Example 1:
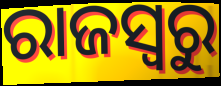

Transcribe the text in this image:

ରାଜସ୍ବରୁ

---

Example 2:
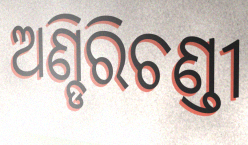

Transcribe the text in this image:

ଅଣ୍ଡିରିଚଣ୍ଡୀ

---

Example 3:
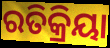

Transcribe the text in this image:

ରତିକ୍ରିୟା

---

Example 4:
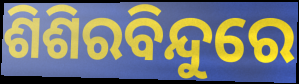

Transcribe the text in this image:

ଶିଶିରବିନ୍ଦୁରେ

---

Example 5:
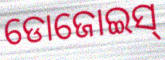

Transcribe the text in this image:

ଡୋଜୋଇସ୍